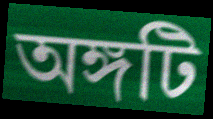
অঙ্গটি